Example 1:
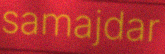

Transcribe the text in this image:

samajdar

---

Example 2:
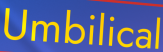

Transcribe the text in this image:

Umbilical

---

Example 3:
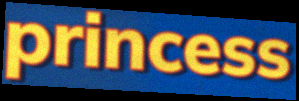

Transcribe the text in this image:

princess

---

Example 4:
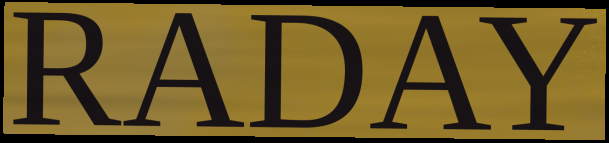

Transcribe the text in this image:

RADAY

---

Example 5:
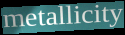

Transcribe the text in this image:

metallicity